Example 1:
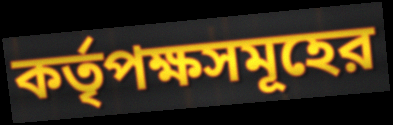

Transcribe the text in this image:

কর্তৃপক্ষসমূহের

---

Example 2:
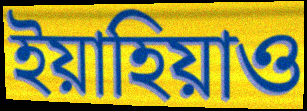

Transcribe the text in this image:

ইয়াহিয়াও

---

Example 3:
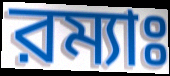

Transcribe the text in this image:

রম্যাঃ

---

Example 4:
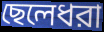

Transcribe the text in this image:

ছেলেধরা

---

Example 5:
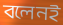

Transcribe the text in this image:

বলেনই